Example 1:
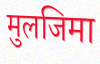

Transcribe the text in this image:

मुलजिमा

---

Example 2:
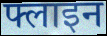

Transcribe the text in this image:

फ्लाइन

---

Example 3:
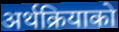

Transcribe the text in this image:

अर्थक्रियाको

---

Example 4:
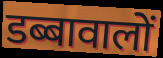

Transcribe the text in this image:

डब्बावालों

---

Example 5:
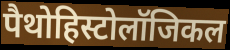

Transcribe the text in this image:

पैथोहिस्टोलॉजिकल